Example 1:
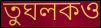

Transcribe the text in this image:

তুঘলকও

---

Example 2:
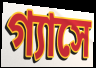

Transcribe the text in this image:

গ্যাসে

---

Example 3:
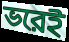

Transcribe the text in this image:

ভরেই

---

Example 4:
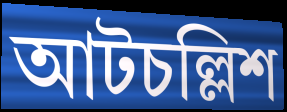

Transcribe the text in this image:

আটচল্লিশ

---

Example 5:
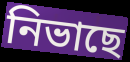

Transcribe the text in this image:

নিভাছে